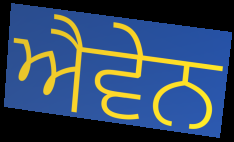
ਐਵੇਨ